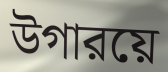
উগারয়ে